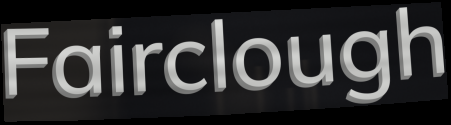
Fairclough